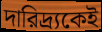
দারিদ্র্যকেই